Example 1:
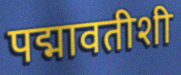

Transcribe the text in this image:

पद्मावतीशी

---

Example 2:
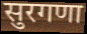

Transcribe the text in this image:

सुरगणा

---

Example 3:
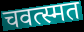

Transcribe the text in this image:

चवत्स्मत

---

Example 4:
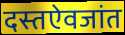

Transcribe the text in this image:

दस्तऐवजांत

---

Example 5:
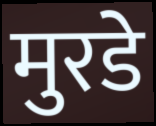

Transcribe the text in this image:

मुरडे